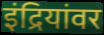
इंद्रियांवर